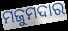
ମଜୁମଦାର